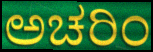
ಅಚರಿಂ